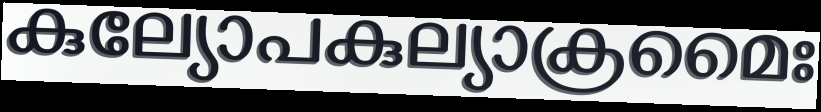
കുല്യോപകുല്യാക്രമൈഃ